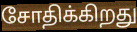
சோதிக்கிறது